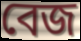
বেজ